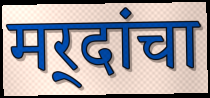
मर्दांचा